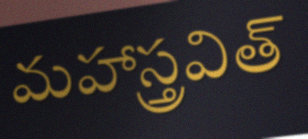
మహాస్త్రవిత్